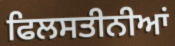
ਫਿਲਸਤੀਨੀਆਂ